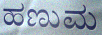
ಹಣುಮ